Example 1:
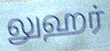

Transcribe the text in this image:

லுஹர்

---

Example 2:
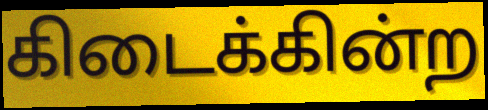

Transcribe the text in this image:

கிடைக்கின்ற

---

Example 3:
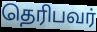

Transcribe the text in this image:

தெரிபவர்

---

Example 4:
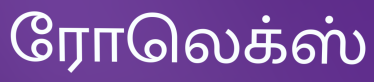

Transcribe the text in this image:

ரோலெக்ஸ்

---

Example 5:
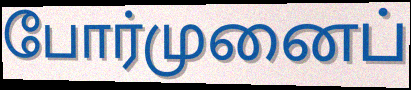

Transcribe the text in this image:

போர்முனைப்